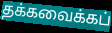
தக்கவைக்கப்